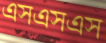
এসএসএস